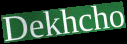
Dekhcho